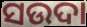
ସଉଦା